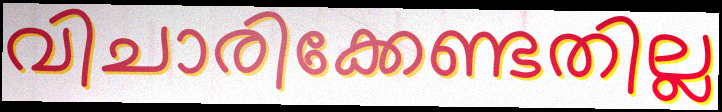
വിചാരിക്കേണ്ടതില്ല